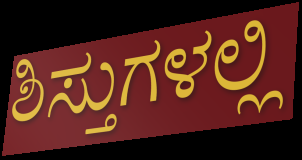
ಶಿಸ್ತುಗಳಲ್ಲಿ